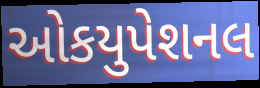
ઓકયુપેશનલ